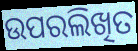
ଉପରଲିଖିତ